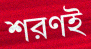
শরণই